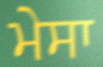
ਮੇਸਾ